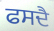
ਫਸਦੈ